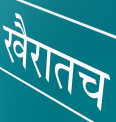
खैरातच